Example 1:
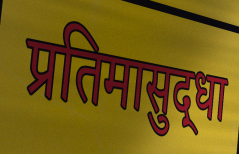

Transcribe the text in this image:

प्रतिमासुद्धा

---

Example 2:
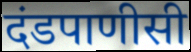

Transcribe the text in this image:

दंडपाणीसी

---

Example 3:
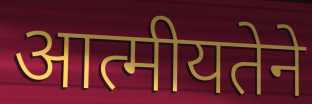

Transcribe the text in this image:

आत्मीयतेने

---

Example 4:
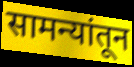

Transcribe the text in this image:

सामन्यांतून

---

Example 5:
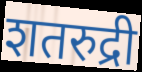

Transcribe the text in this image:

शतरुद्री